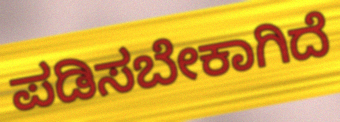
ಪಡಿಸಬೇಕಾಗಿದೆ